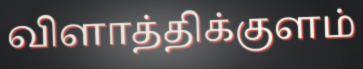
விளாத்திக்குளம்